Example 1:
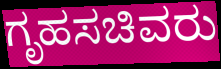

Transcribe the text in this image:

ಗೃಹಸಚಿವರು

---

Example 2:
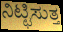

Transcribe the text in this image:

ನಿಟ್ಟಿಸುತ್ತ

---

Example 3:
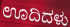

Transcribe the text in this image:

ಊದಿದಳು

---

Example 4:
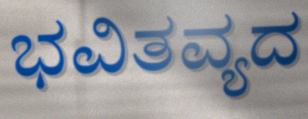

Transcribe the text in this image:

ಭವಿತವ್ಯದ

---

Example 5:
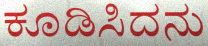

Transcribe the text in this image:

ಕೂಡಿಸಿದನು